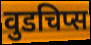
वुडचिप्स